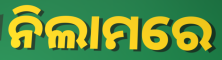
ନିଲାମରେ